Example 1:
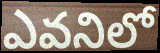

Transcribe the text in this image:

ఎవనిలో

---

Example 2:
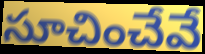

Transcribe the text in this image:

సూచించేవే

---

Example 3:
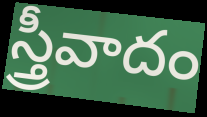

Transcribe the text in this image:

స్త్రీవాదం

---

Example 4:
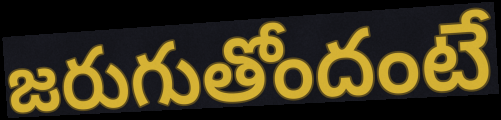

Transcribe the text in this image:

జరుగుతోందంటే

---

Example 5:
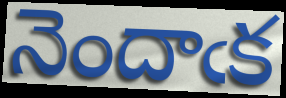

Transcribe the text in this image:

నెందాఁక